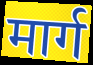
मार्ग